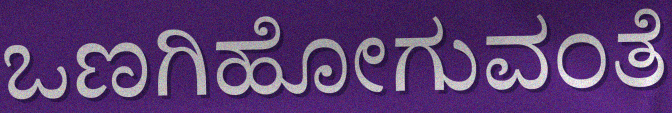
ಒಣಗಿಹೋಗುವಂತೆ